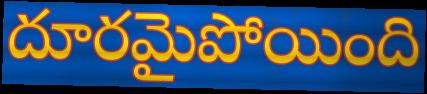
దూరమైపోయింది